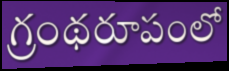
గ్రంథరూపంలో